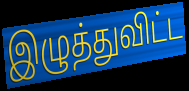
இழுத்துவிட்ட